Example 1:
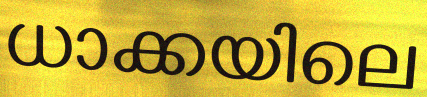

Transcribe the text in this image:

ധാക്കയിലെ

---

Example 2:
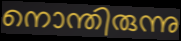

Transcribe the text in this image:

നൊന്തിരുന്നു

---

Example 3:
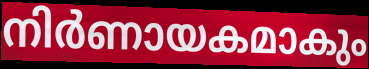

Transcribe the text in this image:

നിർണായകമാകും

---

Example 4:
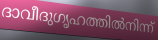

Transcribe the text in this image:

ദാവീദുഗൃഹത്തിൽനിന്ന്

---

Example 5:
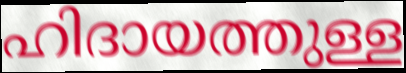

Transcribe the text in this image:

ഹിദായത്തുള്ള